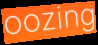
oozing